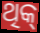
ଥିକ୍